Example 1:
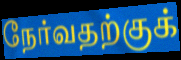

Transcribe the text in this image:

நேர்வதற்குக்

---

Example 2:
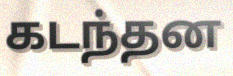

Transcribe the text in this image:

கடந்தன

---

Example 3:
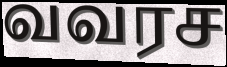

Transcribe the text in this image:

வவரச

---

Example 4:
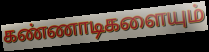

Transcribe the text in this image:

கண்ணாடிகளையும்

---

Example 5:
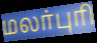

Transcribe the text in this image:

மலர்புரி